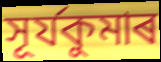
সূৰ্যকুমাৰ